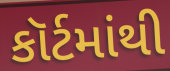
કૉર્ટમાંથી